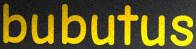
bubutus